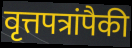
वृत्तपत्रांपैकी